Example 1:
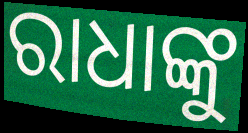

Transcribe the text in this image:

ରାଧାଙ୍କୁ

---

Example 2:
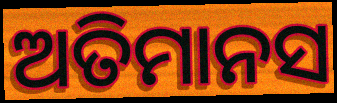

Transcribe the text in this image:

ଅତିମାନସ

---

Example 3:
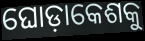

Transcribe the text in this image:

ଘୋଡ଼ାକେଶକୁ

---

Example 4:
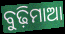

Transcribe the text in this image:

ବୁଢ଼ିମାଆ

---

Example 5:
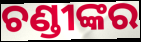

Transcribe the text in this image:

ଚଣ୍ଡୀଙ୍କର